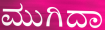
ಮುಗಿದಾ